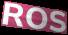
ROS